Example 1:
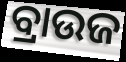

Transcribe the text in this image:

ବ୍ରାଉଜ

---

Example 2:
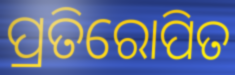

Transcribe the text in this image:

ପ୍ରତିରୋପିତ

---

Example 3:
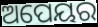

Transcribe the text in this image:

ଅପେୟର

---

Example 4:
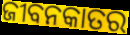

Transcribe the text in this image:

ଜୀବନକାତର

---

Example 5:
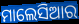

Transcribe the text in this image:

ମାଲେସିଆର